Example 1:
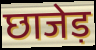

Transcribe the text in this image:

छाजेड़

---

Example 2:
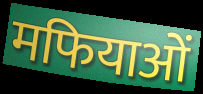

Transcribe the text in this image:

मफियाओं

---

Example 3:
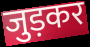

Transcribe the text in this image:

जुड़कर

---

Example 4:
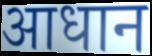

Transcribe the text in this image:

आधान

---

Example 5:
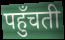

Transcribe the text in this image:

पहुँचती